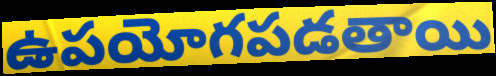
ఉపయోగపడతాయి